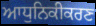
ਆਧੁਨਿਕੀਕਰਣ